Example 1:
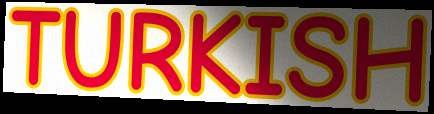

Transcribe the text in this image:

TURKISH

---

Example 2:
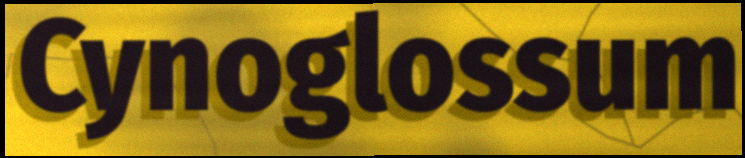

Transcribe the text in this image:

Cynoglossum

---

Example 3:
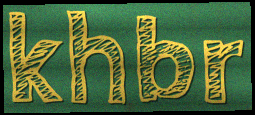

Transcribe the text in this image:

khbr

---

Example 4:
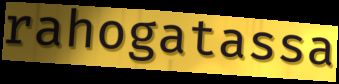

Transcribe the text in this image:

rahogatassa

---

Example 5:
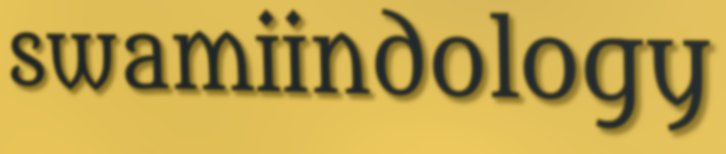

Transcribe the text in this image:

swamiindology